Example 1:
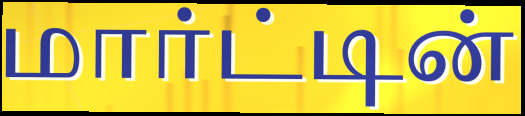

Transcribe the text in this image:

மார்ட்டின்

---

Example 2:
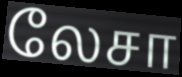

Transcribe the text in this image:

லேசா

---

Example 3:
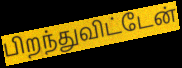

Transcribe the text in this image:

பிறந்துவிட்டேன்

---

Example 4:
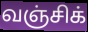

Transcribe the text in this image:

வஞ்சிக்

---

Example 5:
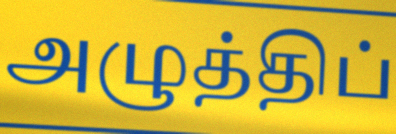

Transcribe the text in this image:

அழுத்திப்